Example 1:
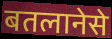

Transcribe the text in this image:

बतलानेसे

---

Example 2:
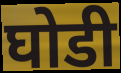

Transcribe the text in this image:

घोडी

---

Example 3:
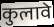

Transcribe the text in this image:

कुलावे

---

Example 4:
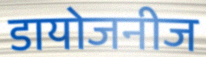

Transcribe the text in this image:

डायोजनीज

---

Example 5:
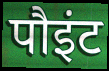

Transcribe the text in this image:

पौइंट